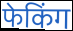
फेकिंग